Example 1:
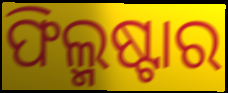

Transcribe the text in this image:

ଫିଲ୍ମଷ୍ଟାର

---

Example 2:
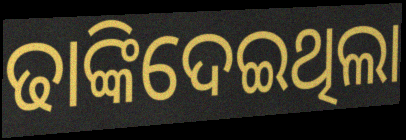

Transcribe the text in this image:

ଢାଙ୍କିଦେଇଥିଲା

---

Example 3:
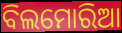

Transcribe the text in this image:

ବିଲମୋରିଆ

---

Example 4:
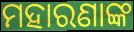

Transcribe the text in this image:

ମହାରଣାଙ୍କ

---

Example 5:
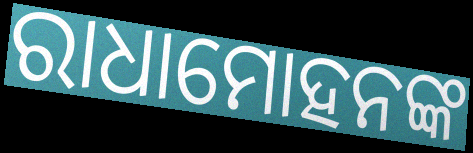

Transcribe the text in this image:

ରାଧାମୋହନଙ୍କ